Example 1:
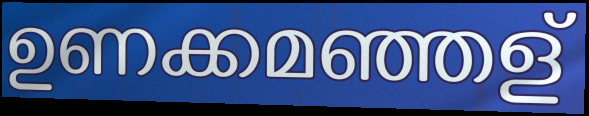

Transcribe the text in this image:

ഉണക്കമഞ്ഞള്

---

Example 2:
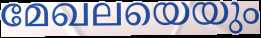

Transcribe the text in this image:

മേഖലയെയും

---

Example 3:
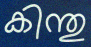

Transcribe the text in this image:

കിന്തു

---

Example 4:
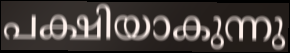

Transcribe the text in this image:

പക്ഷിയാകുന്നു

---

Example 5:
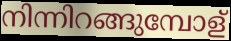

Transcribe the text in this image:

നിന്നിറങ്ങുമ്പോള്